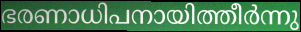
ഭരണാധിപനായിത്തീർന്നു